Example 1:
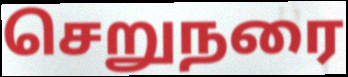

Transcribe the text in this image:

செறுநரை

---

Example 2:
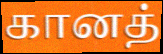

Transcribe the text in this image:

கானத்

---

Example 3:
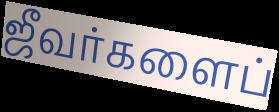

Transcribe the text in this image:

ஜீவர்களைப்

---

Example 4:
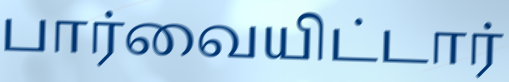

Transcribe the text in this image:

பார்வையிட்டார்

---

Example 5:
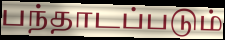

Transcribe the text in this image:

பந்தாடப்படும்